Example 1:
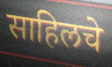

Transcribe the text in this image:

साहिलचे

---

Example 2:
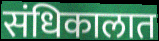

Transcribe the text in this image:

संधिकालात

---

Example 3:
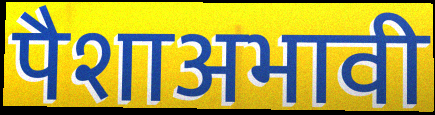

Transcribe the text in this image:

पैशाअभावी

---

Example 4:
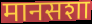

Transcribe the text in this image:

मानसशा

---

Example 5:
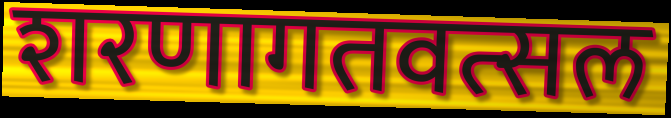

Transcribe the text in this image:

शरणागतवत्सल